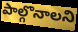
పాల్గొనాలని